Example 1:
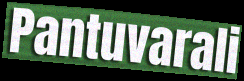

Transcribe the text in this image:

Pantuvarali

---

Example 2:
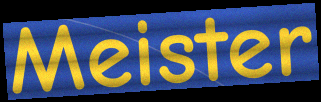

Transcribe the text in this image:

Meister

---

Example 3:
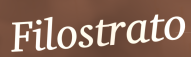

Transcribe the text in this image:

Filostrato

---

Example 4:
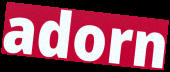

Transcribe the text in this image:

adorn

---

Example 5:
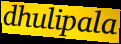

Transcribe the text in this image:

dhulipala